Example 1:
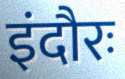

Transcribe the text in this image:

इंदौरः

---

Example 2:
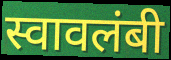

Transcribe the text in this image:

स्वावलंबी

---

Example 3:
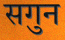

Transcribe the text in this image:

सगुन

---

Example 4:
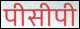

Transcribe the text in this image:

पीसीपी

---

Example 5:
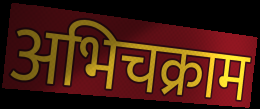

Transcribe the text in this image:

अभिचक्राम